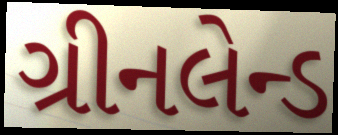
ગ્રીનલેન્ડ